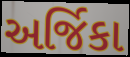
અર્જિકા